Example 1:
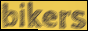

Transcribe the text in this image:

bikers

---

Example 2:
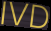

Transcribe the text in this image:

IVD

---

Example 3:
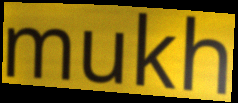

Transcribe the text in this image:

mukh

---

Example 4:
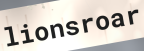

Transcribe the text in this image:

lionsroar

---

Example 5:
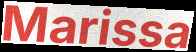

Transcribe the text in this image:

Marissa